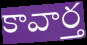
కావార్త